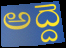
అద్దె